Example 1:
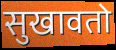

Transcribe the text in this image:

सुखावतो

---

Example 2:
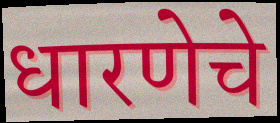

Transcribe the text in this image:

धारणेचे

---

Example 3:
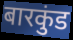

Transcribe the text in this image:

बारकुंड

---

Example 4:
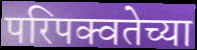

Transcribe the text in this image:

परिपक्वतेच्या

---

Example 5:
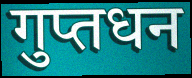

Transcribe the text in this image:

गुप्तधन